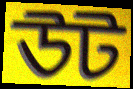
উট